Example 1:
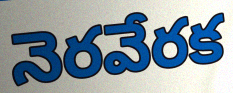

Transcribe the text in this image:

నెరవేరక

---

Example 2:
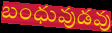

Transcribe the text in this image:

బంధువుడవు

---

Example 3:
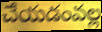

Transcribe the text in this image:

చేయడంవల్ల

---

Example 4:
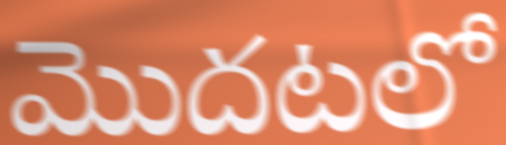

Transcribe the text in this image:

మొదటలో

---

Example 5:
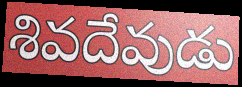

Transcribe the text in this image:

శివదేవుడు